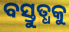
ବସ୍ତୁତ୍ଧକୁ